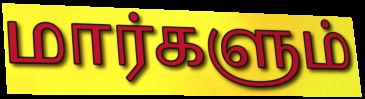
மார்களும்